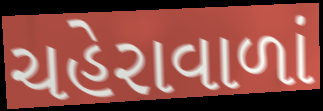
ચહેરાવાળાં